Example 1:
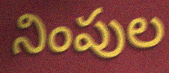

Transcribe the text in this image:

నింపుల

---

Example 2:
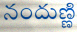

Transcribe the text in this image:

నందుణ్ణి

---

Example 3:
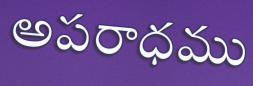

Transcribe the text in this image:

అపరాధము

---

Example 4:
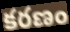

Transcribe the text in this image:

కరణం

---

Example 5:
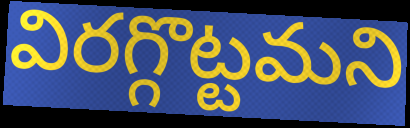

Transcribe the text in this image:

విరగ్గొట్టమని